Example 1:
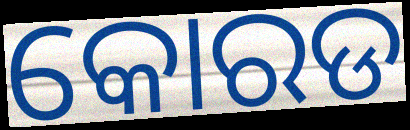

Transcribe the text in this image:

କୋରଡ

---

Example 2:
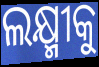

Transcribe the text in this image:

ଲକ୍ଷ୍ମୀକୁ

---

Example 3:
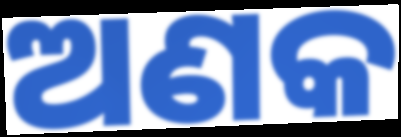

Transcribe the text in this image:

ଅଣକ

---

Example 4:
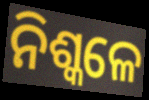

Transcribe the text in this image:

ନିଶ୍କଳେ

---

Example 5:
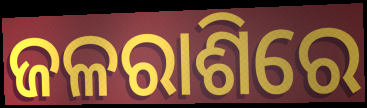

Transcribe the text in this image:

ଜଳରାଶିରେ